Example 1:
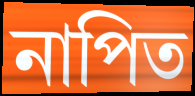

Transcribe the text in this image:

নাপিত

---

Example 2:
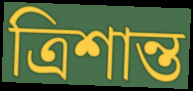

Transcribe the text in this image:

ত্রিশান্ত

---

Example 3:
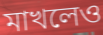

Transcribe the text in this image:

মাখলেও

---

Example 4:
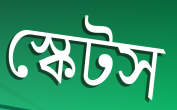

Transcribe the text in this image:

স্কেটস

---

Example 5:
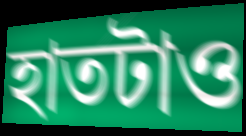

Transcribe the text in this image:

হাতটাও